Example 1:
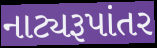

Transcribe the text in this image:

નાટ્યરૂપાંતર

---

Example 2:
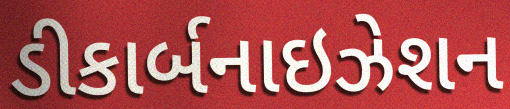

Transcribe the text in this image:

ડીકાર્બનાઇઝેશન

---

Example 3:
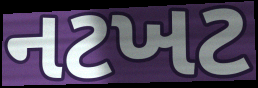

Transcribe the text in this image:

નટખટ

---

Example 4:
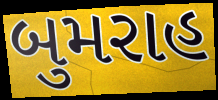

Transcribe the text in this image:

બુમરાહ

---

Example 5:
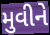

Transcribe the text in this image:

મુવીને